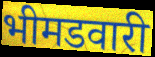
भीमडवारी